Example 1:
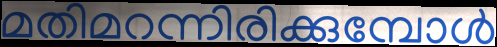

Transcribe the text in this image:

മതിമറന്നിരിക്കുമ്പോൾ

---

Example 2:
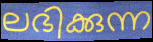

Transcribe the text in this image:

ലഭിക്കുന്ന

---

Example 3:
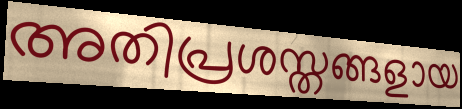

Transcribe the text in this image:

അതിപ്രശസ്തങ്ങളായ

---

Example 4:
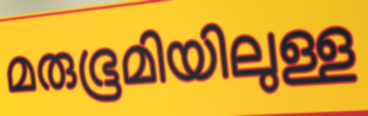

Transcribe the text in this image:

മരുഭൂമിയിലുള്ള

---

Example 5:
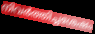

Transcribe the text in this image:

നിവർത്തിച്ചശേഷം